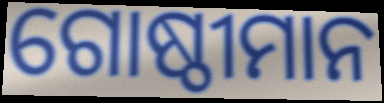
ଗୋଷ୍ଠୀମାନ